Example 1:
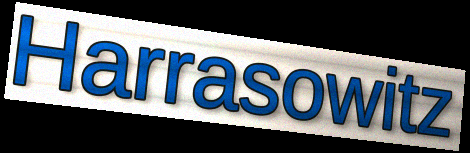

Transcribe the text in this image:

Harrasowitz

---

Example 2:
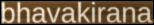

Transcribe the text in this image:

bhavakirana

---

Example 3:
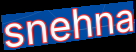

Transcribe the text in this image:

snehna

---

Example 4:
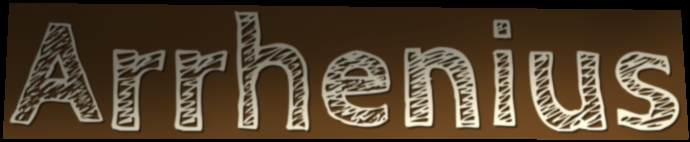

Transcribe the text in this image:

Arrhenius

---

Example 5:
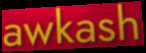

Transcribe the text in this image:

awkash